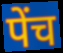
पेंच